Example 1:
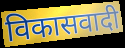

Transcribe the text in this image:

विकासवादी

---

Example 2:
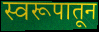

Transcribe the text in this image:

स्वरूपातून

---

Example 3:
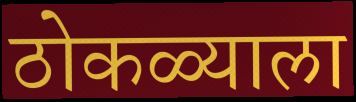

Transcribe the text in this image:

ठोकळ्याला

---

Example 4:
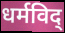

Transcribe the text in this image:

धर्मविद्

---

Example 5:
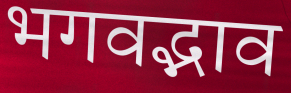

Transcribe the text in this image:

भगवद्भाव